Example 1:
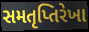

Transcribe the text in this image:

સમતૃપ્તિરેખા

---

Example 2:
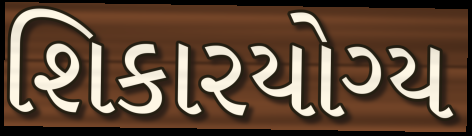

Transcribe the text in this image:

શિકારયોગ્ય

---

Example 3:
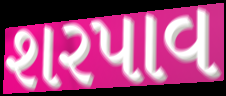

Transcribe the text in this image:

શરપાવ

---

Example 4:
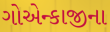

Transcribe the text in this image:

ગોએન્કાજીના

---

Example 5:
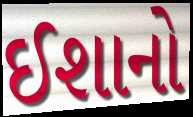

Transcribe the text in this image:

ઈશાનો